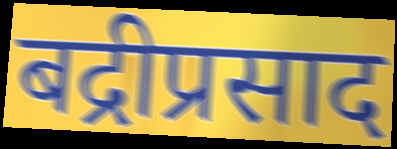
बद्रीप्रसाद